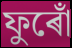
ফুৰোঁ